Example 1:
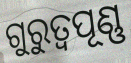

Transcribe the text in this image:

ଗୁରୁତ୍ବପୂଣ୍ଣ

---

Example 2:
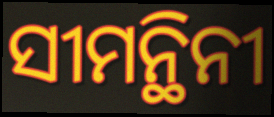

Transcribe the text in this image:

ସୀମନ୍ଥିନୀ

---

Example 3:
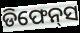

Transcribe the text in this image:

ଡିଫେନ୍‌ସ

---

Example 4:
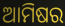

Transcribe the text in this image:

ଆମିଷର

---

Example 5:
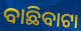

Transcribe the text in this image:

ବାଛିବାଟା